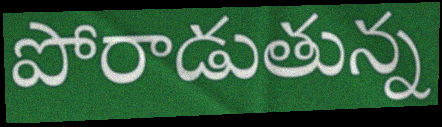
పోరాడుతున్న